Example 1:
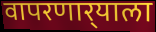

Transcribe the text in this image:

वापरणार्‍याला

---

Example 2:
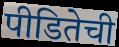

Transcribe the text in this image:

पीडितेची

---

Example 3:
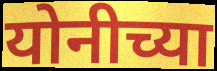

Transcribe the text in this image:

योनीच्या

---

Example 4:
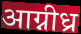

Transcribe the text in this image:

आग्नीध्र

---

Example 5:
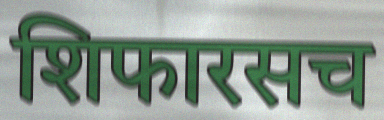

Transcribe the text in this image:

शिफारसच